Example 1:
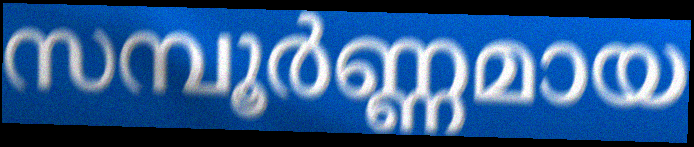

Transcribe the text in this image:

സമ്പൂർണ്ണമായ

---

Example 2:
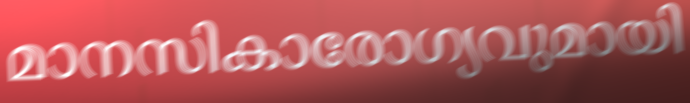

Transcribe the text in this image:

മാനസികാരോഗ്യവുമായി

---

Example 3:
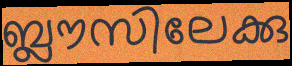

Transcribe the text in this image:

ബ്ലൗസിലേക്കു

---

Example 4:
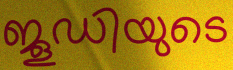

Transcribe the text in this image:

ജൂഡിയുടെ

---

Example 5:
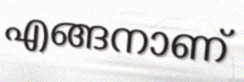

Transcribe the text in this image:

എങ്ങനാണ്